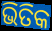
ଭିତିକ